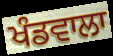
ਖੰਡਵਾਲਾ